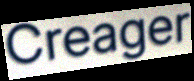
Creager